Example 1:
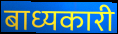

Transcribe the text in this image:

बाध्‍यकारी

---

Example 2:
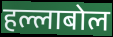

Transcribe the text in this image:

हल्लाबोल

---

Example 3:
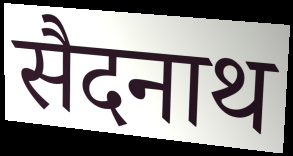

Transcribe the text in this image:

सैदनाथ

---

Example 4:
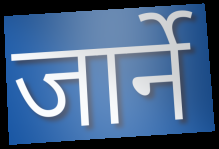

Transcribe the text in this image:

जार्ने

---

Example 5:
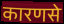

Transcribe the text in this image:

कारणसे